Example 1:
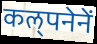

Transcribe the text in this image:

कल्पनेनें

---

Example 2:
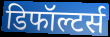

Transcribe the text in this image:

डिफॉल्टर्स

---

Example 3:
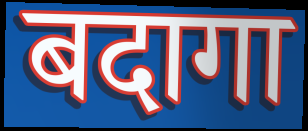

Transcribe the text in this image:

बदागा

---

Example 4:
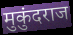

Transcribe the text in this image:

मुकुंदराज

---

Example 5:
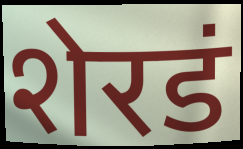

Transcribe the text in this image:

शेरडं